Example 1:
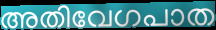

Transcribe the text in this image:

അതിവേഗപാത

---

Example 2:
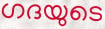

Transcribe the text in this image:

ഗദയുടെ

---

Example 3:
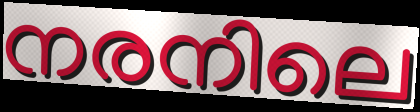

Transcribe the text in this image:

നരനിലെ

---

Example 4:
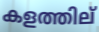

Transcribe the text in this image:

കളത്തില്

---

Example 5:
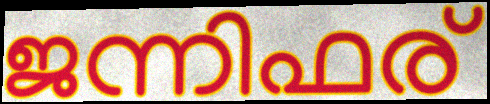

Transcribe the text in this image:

ജന്നിഫര്